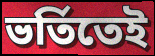
ভর্তিতেই